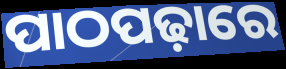
ପାଠପଢ଼ାରେ